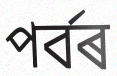
পৰ্বৰ